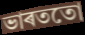
ভাৰততো